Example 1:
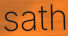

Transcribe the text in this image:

sath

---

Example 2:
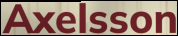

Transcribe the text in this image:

Axelsson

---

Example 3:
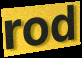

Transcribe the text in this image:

rod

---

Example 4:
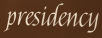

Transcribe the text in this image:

presidency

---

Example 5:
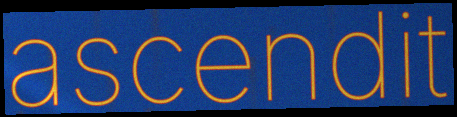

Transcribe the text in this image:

ascendit